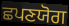
ਛਪਣਯੋਗ